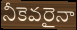
నీకెవరైనా